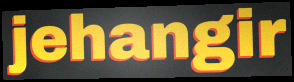
jehangir